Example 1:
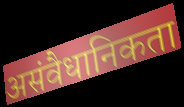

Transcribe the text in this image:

असंवैधानिकता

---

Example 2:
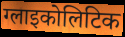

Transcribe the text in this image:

ग्लाइकोलिटिक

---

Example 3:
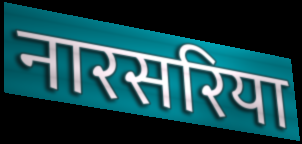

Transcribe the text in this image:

नारसरिया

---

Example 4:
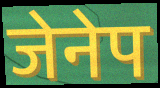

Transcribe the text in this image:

जेनेप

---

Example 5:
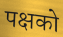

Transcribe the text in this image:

पक्षको